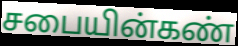
சபையின்கண்